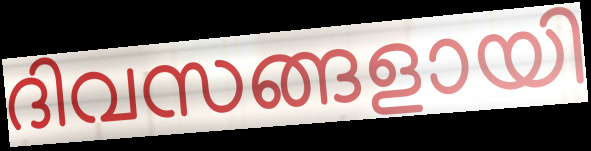
ദിവസങ്ങളായി